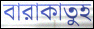
বারাকাতুহ